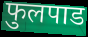
फुलपाड